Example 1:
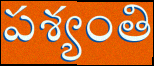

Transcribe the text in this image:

పశ్యంతి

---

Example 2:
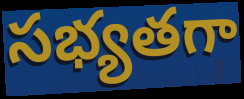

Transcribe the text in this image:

సభ్యతగా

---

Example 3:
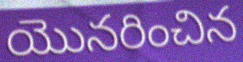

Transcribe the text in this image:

యొనరించిన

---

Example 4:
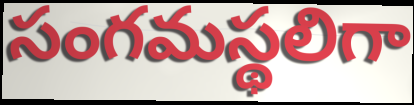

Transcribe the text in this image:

సంగమస్థలిగా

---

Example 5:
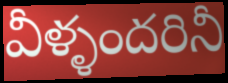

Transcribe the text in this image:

వీళ్ళందరినీ